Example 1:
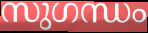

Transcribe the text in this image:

സുഗന്ധം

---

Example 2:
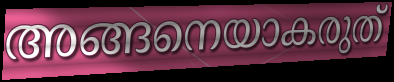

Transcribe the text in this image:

അങ്ങനെയാകരുത്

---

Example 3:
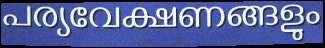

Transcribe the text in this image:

പര്യവേക്ഷണങ്ങളും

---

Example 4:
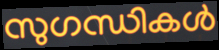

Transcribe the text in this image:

സുഗന്ധികൾ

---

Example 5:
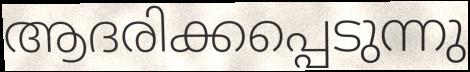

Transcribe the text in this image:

ആദരിക്കപ്പെടുന്നു